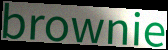
brownie